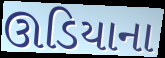
ઊડિયાના